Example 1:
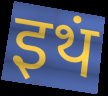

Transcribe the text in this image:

इथं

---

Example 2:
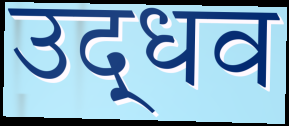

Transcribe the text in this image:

उद्धव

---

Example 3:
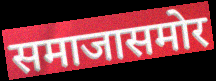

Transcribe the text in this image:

समाजासमोर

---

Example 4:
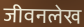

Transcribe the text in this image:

जीवनलेख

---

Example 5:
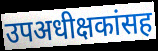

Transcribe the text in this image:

उपअधीक्षकांसह